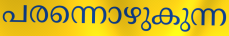
പരന്നൊഴുകുന്ന